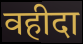
वहीदा